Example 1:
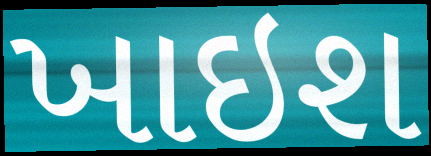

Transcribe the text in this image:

ખાઇશ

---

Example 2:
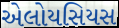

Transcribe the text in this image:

એલોયસિયસ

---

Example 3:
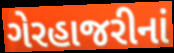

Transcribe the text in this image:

ગેરહાજરીનાં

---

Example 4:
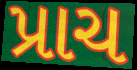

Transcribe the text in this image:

પ્રાચ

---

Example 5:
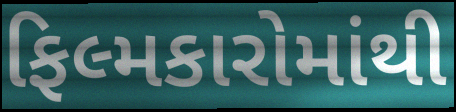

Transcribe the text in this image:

ફિલ્મકારોમાંથી